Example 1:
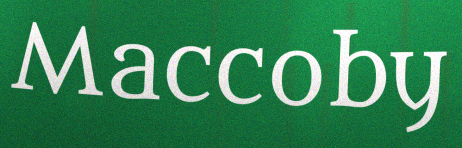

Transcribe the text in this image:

Maccoby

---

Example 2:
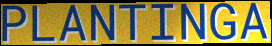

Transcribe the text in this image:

PLANTINGA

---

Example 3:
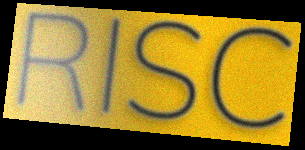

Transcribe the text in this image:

RISC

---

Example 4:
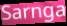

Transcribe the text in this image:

Sarnga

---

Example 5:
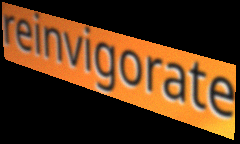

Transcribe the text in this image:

reinvigorate